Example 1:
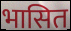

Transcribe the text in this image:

भासित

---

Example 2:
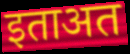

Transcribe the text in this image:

इताअत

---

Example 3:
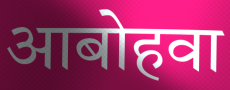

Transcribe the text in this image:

आबोहवा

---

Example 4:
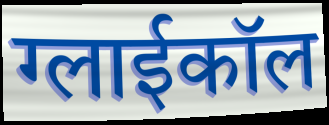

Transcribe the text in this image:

ग्लाईकॉल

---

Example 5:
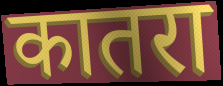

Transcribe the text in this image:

कातरा